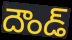
దౌండ్